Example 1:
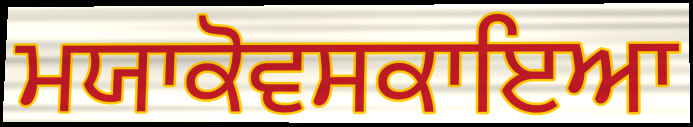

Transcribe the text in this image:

ਮਯਾਕੋਵਸਕਾਇਆ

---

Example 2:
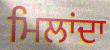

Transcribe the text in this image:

ਮਿਲਾਂਦਾ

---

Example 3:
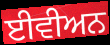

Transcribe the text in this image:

ਈਵੀਅਨ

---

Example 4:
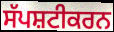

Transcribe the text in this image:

ਸੱਪਸ਼ਟੀਕਰਨ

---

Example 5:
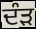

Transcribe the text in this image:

ਦੰੜ